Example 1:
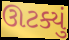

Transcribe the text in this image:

ઊટક્યું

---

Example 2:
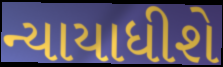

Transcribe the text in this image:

ન્યાયાધીશે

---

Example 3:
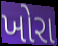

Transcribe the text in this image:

ખોરા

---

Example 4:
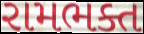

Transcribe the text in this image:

રામભક્ત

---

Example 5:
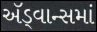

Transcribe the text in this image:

ઍડ્વાન્સમાં